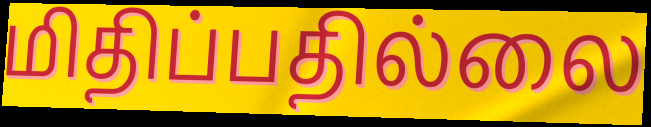
மிதிப்பதில்லை